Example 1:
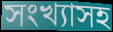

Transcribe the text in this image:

সংখ্যাসহ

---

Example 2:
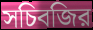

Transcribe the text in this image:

সচিবজির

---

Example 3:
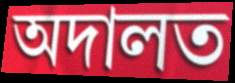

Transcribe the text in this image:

অদালত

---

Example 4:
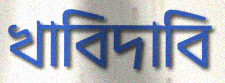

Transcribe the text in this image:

খাবিদাবি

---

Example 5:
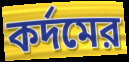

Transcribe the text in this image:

কর্দমের